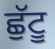
ਛੁੱਟੂ